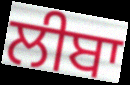
ਲੀਬਾ